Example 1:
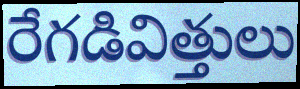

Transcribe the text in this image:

రేగడివిత్తులు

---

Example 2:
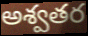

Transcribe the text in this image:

అశ్వతర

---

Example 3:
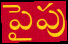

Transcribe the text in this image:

పైపు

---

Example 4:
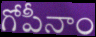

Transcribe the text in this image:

గోపీనాం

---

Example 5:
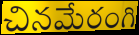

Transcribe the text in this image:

చినమేరంగి